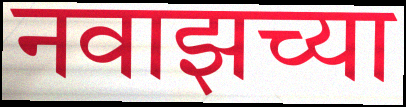
नवाझच्या